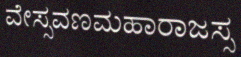
ವೇಸ್ಸವಣಮಹಾರಾಜಸ್ಸ